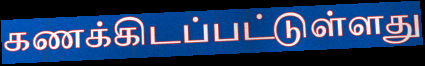
கணக்கிடப்பட்டுள்ளது